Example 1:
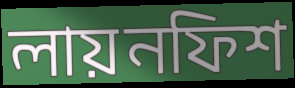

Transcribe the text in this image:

লায়নফিশ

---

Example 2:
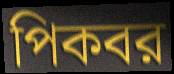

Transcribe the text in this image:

পিকবর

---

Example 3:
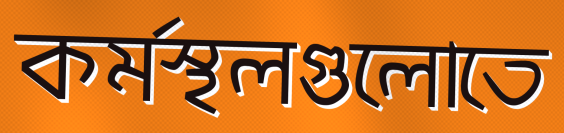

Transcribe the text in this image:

কর্মস্থলগুলোতে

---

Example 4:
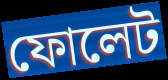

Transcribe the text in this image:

ফোলেট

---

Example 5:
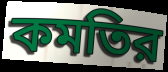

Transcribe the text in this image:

কমতির